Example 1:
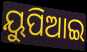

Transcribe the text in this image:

ୟୁପିଆଇ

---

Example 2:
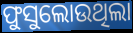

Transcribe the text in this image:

ଫୁସୁଲୋଉଥିଲା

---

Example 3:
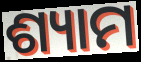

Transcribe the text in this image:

ଶ୍ୟାମ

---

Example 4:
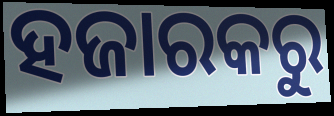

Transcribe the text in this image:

ହଜାରକରୁ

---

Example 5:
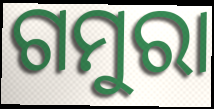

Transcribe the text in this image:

ଗମୁରା